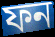
ফন